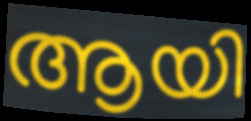
ആയി